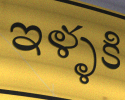
ఇళ్ళకి